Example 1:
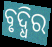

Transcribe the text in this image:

ବୃଦ୍ଧିର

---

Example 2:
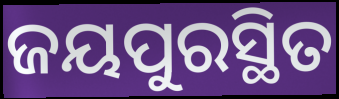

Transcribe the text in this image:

ଜୟପୁରସ୍ଥିତ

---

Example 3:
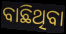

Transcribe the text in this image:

ବାଛିଥିବା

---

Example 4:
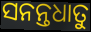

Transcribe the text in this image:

ସନନ୍ତଧାତୁ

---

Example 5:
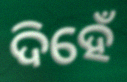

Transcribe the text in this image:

ଦିହେଁ